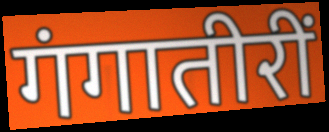
गंगातीरीं